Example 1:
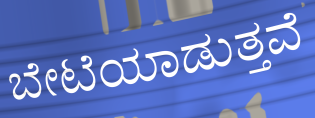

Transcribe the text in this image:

ಬೇಟೆಯಾಡುತ್ತವೆ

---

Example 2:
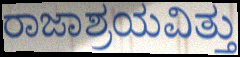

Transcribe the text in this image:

ರಾಜಾಶ್ರಯವಿತ್ತು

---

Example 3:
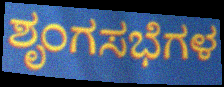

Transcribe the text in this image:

ಶೃಂಗಸಭೆಗಳ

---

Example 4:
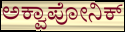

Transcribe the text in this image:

ಅಕ್ವಾಪೋನಿಕ್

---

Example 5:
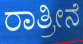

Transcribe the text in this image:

ರಾತ್ರೀನೆ